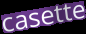
casette